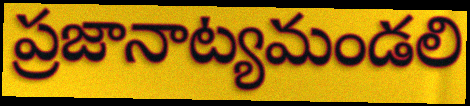
ప్రజానాట్యమండలి